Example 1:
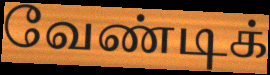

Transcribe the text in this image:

வேண்டிக்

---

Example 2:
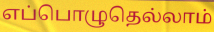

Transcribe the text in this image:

எப்பொழுதெல்லாம்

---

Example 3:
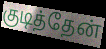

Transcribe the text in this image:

குடித்தேன்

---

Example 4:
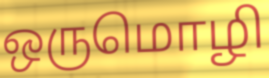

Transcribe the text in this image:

ஒருமொழி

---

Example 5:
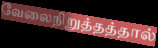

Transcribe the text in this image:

வேலைநிறுத்தத்தால்